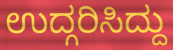
ಉದ್ಗರಿಸಿದ್ದು